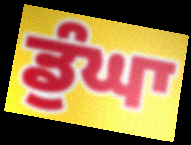
ਡੁੰਘਾ